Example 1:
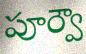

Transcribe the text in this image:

పూర్వౌ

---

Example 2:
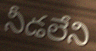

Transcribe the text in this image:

నీడలేని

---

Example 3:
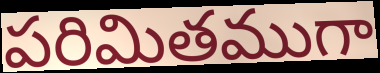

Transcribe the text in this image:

పరిమితముగా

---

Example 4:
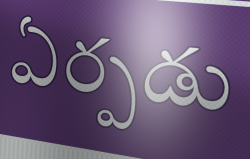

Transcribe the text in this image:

ఏర్పడు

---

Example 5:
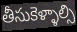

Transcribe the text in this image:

తీసుకెళ్ళాల్సి